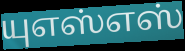
யுஎஸ்எஸ்